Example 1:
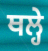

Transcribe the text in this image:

ਥਲ੍ਹੇ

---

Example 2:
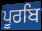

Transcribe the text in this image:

ਪੂਰਬਿ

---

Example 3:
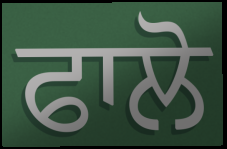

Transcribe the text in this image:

ਫਾਲੋ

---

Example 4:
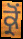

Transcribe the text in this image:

ਕ੍ਰੋਂ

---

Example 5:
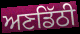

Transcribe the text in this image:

ਅਣਡਿੱਠੀ